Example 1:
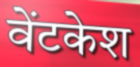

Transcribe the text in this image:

वेंटकेश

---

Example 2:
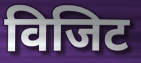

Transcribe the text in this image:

विजिट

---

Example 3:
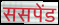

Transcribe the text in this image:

ससपेंड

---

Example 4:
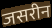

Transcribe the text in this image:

जसरीन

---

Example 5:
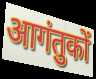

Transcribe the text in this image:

आगंतुकों